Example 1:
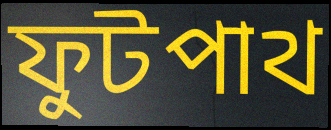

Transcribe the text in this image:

ফুটপাথ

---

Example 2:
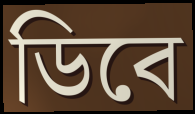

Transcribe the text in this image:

ডিবে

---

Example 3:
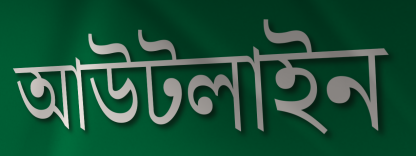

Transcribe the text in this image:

আউটলাইন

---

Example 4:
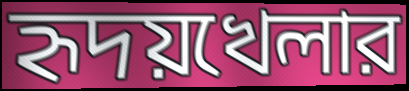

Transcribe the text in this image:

হৃদয়খেলার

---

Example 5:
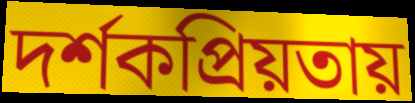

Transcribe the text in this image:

দর্শকপ্রিয়তায়